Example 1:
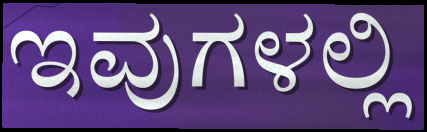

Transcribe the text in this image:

ಇವುಗಳಲ್ಲಿ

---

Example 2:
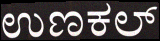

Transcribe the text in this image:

ಉಣಕಲ್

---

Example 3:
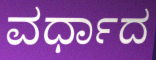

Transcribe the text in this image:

ವರ್ಧಾದ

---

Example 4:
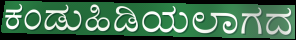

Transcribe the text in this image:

ಕಂಡುಹಿಡಿಯಲಾಗದ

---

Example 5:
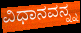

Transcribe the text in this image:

ವಿಧಾನವನ್ನ್ನ